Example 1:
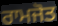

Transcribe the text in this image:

ਰਾਮਜੋਤ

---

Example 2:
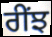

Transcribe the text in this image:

ਰੀਂਝ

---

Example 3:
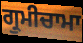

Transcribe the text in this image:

ਗ੍ਰੁਮੀਚਾਮਾ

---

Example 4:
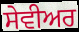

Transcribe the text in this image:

ਸੇਵੀਅਰ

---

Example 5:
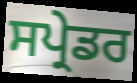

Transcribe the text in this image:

ਸਪ੍ਰੇਡਰ